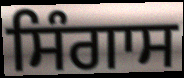
ਸਿੰਗਾਸ